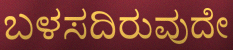
ಬಳಸದಿರುವುದೇ